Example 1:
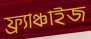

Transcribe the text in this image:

ফ্র্যাঞ্চাইজ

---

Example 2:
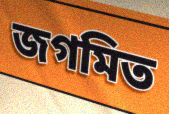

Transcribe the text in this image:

জগমিত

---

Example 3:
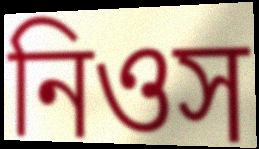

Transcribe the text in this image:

নিওস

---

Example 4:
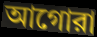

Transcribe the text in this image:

আগোরা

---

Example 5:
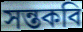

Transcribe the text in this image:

সন্তকবি